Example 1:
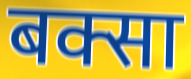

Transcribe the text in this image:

बक्सा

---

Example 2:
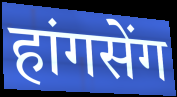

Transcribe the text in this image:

हांगसेंग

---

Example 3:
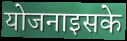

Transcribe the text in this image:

योजनाइसके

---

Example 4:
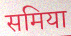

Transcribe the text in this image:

समिया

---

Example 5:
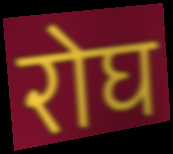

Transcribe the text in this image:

रोघ